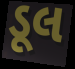
ડૂલ